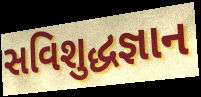
સવિશુદ્ધજ્ઞાન